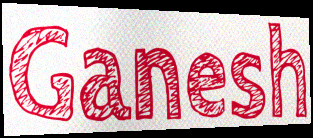
Ganesh